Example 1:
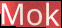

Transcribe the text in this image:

Mok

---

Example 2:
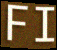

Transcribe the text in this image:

FI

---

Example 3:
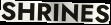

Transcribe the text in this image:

SHRINES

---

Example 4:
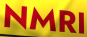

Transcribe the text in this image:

NMRI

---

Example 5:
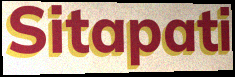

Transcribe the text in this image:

Sitapati